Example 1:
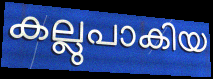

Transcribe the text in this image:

കല്ലുപാകിയ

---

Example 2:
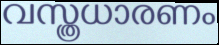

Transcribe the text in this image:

വസ്ത്രധാരണം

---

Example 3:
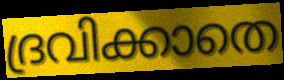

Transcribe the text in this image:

ദ്രവിക്കാതെ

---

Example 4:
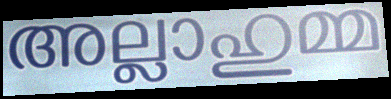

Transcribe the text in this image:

അല്ലാഹുമ്മ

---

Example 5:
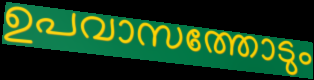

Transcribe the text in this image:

ഉപവാസത്തോടും